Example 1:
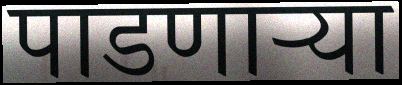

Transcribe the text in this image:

पाडणाऱ्या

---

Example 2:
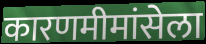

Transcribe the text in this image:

कारणमीमांसेला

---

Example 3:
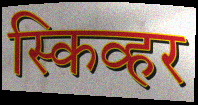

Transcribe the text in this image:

स्किव्हर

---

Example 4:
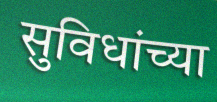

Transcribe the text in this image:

सुविधांच्या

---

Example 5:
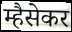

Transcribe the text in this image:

म्हैसेकर